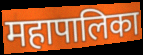
महापालिका